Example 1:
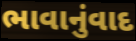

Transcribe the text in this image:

ભાવાનુંવાદ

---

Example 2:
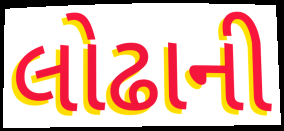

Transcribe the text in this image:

લોઢાની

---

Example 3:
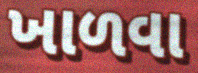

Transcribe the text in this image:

ખાળવા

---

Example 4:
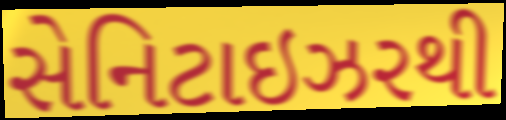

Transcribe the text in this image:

સેનિટાઇઝરથી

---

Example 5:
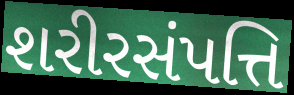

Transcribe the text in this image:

શરીરસંપત્તિ